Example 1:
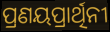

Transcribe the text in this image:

ପ୍ରଣୟପ୍ରାର୍ଥିନୀ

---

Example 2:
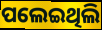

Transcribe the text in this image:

ପଲେଇଥିଲି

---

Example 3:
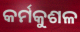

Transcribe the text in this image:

କର୍ମକୁଶଳ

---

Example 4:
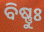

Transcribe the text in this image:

ବିଷ୍ଣୁଃ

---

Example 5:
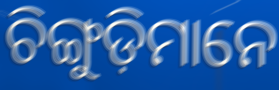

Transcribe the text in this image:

ଚିଙ୍ଗୁଡ଼ିମାନେ